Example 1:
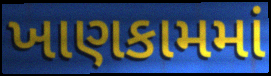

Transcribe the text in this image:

ખાણકામમાં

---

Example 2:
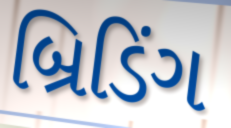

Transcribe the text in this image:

બ્રિડિંગ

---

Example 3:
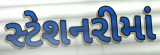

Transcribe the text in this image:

સ્ટેશનરીમાં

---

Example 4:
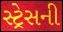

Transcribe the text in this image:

સ્ટ્રેસની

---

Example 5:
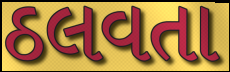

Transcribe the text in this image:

ઠલવતા